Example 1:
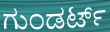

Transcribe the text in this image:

ಗುಂಡರ್ಟ್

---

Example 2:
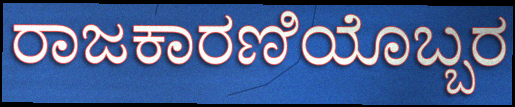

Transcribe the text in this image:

ರಾಜಕಾರಣಿಯೊಬ್ಬರ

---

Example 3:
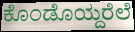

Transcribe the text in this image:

ಕೊಂಡೊಯ್ದರೆಲೆ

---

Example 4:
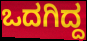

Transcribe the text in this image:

ಒದಗಿದ್ದ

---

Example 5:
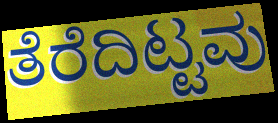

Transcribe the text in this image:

ತೆರೆದಿಟ್ಟವು